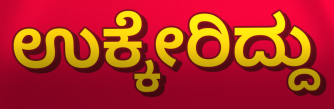
ಉಕ್ಕೇರಿದ್ದು